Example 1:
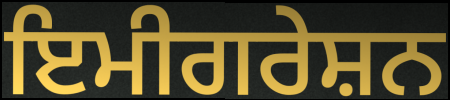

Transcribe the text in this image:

ਇਮੀਗਰੇਸ਼ਨ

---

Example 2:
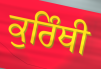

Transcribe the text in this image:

ਕੁਰਿੰਥੀ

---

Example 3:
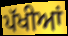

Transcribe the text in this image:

ਪੱਖੀਆਂ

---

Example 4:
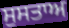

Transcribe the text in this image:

ਸੁਸਤਾਅ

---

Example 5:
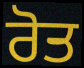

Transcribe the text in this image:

ਰੋਤ